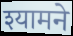
श्यामने